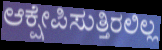
ಆಕ್ಷೇಪಿಸುತ್ತಿರಲಿಲ್ಲ